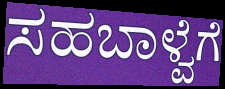
ಸಹಬಾಳ್ವೆಗೆ